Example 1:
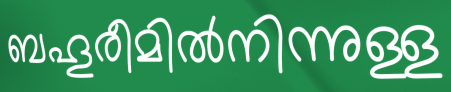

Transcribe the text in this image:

ബഹൂരീമിൽനിന്നുള്ള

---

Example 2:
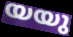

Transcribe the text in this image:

യയു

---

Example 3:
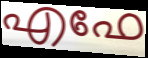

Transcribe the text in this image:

എഫേ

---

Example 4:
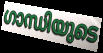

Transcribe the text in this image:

ഗാന്ധിയുടെ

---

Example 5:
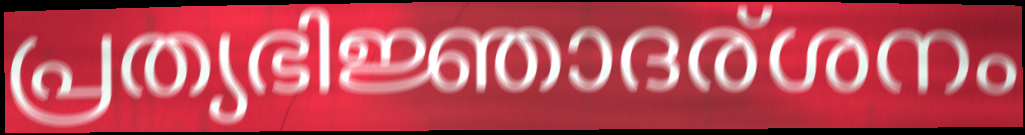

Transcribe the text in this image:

പ്രത്യഭിജ്ഞാദര്ശനം